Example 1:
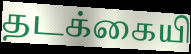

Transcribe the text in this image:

தடக்கையி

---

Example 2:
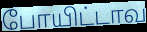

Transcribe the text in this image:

போயிட்டாவ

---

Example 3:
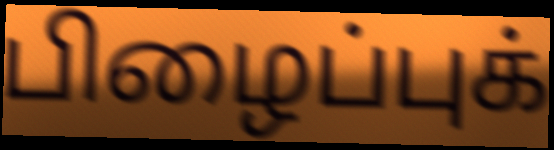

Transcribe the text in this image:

பிழைப்புக்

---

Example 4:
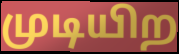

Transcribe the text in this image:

முடியிற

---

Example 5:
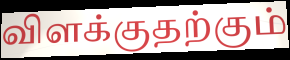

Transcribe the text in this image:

விளக்குதற்கும்